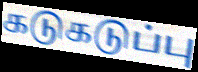
கடுகடுப்பு